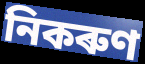
নিকৰুণ